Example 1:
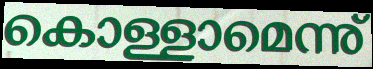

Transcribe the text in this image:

കൊള്ളാമെന്നു്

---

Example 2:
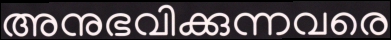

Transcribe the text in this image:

അനുഭവിക്കുന്നവരെ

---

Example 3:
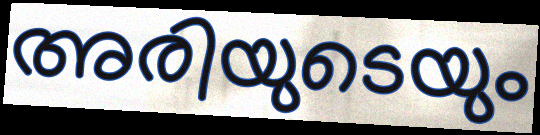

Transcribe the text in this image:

അരിയുടെയും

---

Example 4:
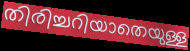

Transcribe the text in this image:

തിരിച്ചറിയാതെയുള്ള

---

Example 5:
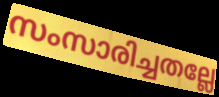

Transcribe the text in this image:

സംസാരിച്ചതല്ലേ